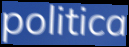
politica